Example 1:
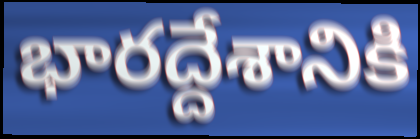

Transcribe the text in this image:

భారద్దేశానికి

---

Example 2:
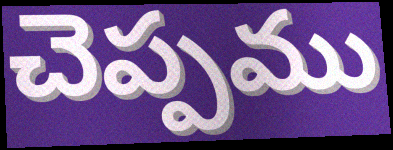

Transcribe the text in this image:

చెప్పము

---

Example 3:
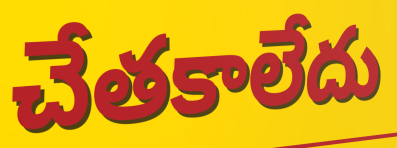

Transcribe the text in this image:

చేతకాలేదు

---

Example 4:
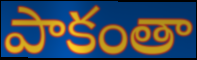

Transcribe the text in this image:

పాకంతా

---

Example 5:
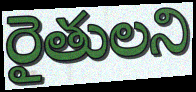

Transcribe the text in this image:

రైతులని